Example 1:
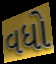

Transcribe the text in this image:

વધો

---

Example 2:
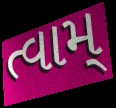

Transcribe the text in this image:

ત્વામ્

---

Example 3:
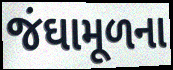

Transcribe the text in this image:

જંઘામૂળના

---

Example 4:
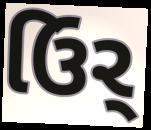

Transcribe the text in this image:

ઉિર્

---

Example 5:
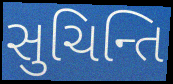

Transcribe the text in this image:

સુચિન્તિ